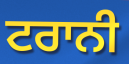
ਟਰਾਨੀ